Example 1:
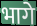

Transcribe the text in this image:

भागे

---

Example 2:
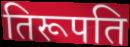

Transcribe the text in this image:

तिरूपति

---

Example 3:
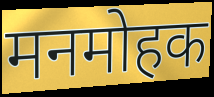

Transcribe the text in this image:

मनमोहक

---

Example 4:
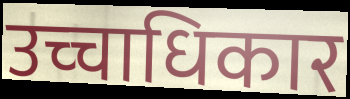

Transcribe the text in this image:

उच्‍चाधिकार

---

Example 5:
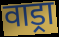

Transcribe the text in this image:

वाड्रा